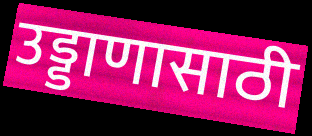
उड्डाणासाठी